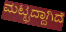
ಮಟ್ಟದ್ದಾಗಿದೆ